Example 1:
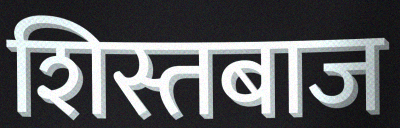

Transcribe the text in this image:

शिस्तबाज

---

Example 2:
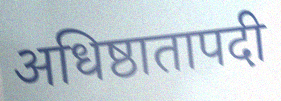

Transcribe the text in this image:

अधिष्ठातापदी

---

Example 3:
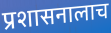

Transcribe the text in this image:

प्रशासनालाच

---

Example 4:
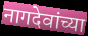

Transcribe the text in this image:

नागदेवांच्या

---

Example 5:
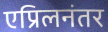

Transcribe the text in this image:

एप्रिलनंतर